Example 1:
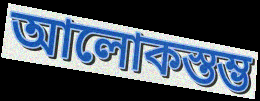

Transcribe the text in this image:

আলোকস্তম্ভ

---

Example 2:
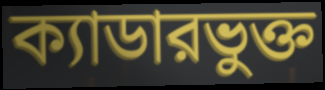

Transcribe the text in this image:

ক্যাডারভুক্ত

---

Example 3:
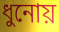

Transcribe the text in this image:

ধুনোয়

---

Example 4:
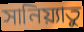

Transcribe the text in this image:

সানিয়্যাতু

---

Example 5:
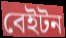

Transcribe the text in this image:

বেইটন